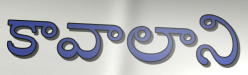
కావాలాని